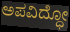
ಅಪವಿದ್ಧೋ